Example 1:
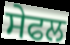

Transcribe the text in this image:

ਸੇਫਲ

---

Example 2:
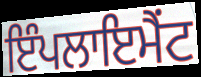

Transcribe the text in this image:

ਇੰਪਲਾਇਮੈਂਟ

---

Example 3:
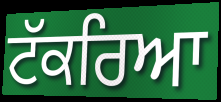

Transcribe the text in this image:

ਟੱਕਰਿਆ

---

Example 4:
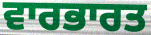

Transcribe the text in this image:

ਵਾਰਭਾਰਤ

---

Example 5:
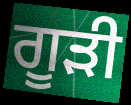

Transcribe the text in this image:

ਗੂੜੀ